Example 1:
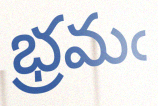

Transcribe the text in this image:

భ్రమఁ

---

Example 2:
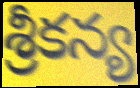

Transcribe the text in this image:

శ్రీకన్య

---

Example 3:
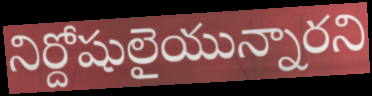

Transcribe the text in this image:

నిర్దోషులైయున్నారని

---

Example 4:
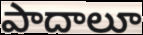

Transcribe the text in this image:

పాదాలూ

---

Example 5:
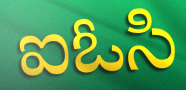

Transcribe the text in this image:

ఐఓసి